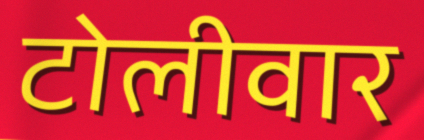
टोलीवार